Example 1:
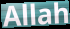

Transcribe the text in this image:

Allah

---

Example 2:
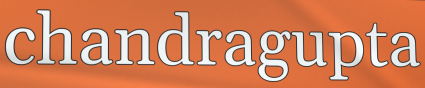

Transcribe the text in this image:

chandragupta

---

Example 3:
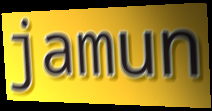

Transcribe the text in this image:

jamun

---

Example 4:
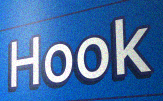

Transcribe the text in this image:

Hook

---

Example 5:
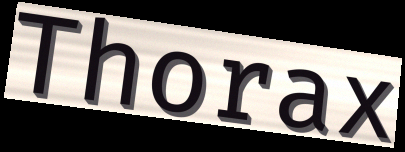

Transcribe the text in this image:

Thorax